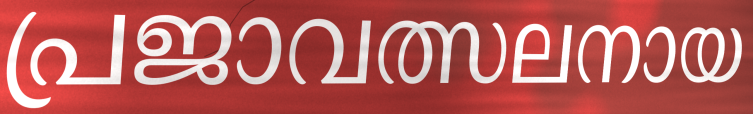
പ്രജാവത്സലനായ